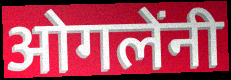
ओगलेंनी